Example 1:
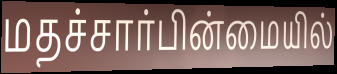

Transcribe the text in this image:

மதச்சார்பின்மையில்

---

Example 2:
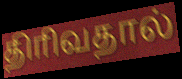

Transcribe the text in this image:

திரிவதால்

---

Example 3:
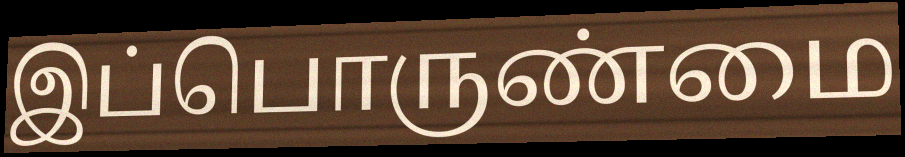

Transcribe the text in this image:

இப்பொருண்மை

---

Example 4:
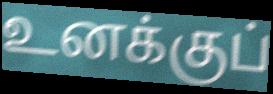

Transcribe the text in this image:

உனக்குப்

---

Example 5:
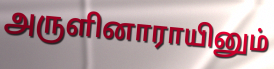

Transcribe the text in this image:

அருளினாராயினும்